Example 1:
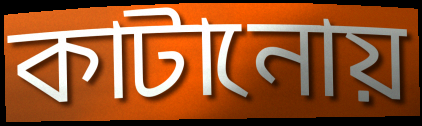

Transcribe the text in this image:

কাটানোয়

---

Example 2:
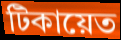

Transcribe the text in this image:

টিকায়েত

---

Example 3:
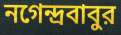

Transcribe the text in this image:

নগেন্দ্রবাবুর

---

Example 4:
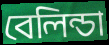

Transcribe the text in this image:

বেলিন্ডা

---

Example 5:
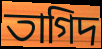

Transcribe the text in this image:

তাগিদ